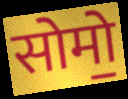
सोमो॒